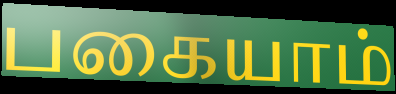
பகையாம்